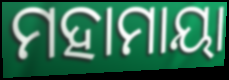
ମହାମାୟା